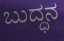
ಬುದ್ಧನ